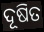
ଦୂଷିତ